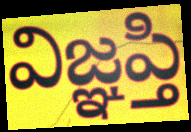
విజ్ఞప్తి